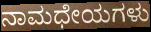
ನಾಮಧೇಯಗಳು